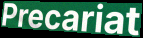
Precariat